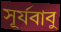
সূর্যবাবু